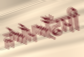
ਜੇਐਮਐੱਫ਼ਸੀ